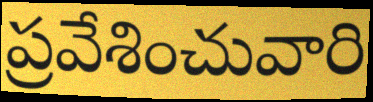
ప్రవేశించువారి